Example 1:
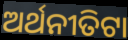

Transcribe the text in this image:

ଅର୍ଥନୀତିଟା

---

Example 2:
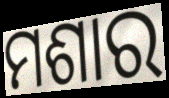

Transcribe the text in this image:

ମଶାର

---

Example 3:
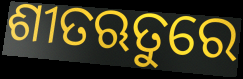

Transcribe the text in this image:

ଶୀତଋତୁରେ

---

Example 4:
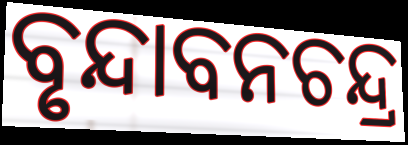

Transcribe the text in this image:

ବୃନ୍ଦାବନଚନ୍ଦ୍ର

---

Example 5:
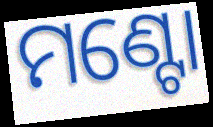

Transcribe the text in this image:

ମଣ୍ଟୋ